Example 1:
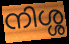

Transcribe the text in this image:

നിശ്ശ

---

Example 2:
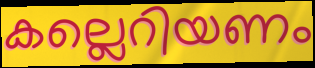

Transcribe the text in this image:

കല്ലെറിയണം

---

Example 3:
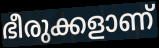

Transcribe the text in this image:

ഭീരുക്കളാണ്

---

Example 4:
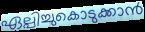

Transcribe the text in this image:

ഏല്പിച്ചുകൊടുക്കാൻ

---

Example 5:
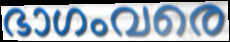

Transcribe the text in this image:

ഭാഗംവരെ